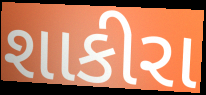
શાકીરા